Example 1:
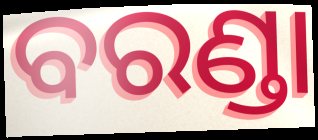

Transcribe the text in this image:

ବରଣ୍ଡା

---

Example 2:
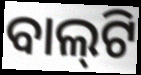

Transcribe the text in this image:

ବାଲ୍‍ଟି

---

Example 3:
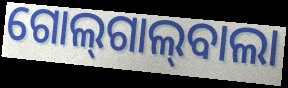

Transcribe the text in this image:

ଗୋଲ୍‍ଗାଲ୍‍ବାଲା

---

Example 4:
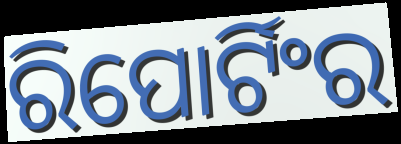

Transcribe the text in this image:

ରିପୋର୍ଟିଂର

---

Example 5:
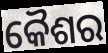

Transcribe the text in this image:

କୈଶର